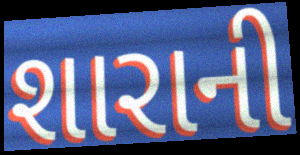
શારાની